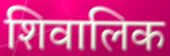
शिवालिक